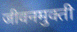
जीवनमुक्ती